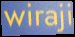
wiraji